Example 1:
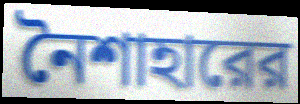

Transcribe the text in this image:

নৈশাহারের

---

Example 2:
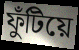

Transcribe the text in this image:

ফুঁটিয়ে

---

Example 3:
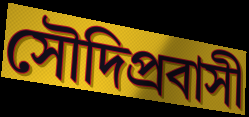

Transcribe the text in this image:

সৌদিপ্রবাসী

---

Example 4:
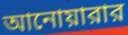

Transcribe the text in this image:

আনোয়ারার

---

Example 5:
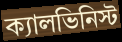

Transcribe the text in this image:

ক্যালভিনিস্ট